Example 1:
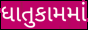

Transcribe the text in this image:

ધાતુકામમાં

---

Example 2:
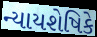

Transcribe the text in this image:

ન્યાયશેષિકે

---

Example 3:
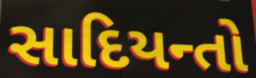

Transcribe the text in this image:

સાદિયન્તો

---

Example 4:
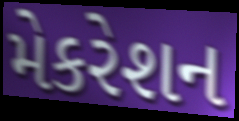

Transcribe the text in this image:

મેકરેશન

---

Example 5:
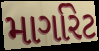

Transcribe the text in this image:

માર્ગારેટ